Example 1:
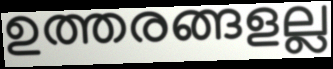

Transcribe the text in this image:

ഉത്തരങ്ങളല്ല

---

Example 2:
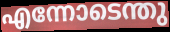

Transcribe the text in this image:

എന്നോടെന്തു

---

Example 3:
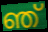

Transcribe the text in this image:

ഞ്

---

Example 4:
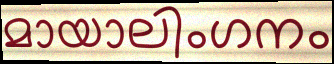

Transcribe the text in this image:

മായാലിംഗനം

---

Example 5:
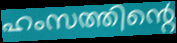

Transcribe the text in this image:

ഹംസത്തിന്റെ